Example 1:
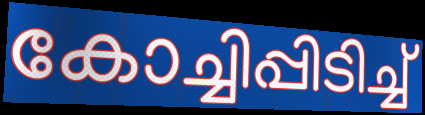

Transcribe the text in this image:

കോച്ചിപ്പിടിച്ച്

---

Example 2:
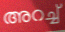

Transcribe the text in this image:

അറച്ച്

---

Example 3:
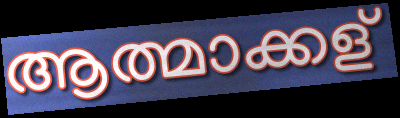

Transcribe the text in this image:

ആത്മാക്കള്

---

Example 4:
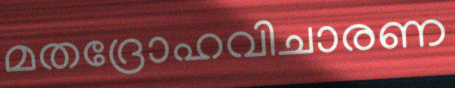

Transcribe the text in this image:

മതദ്രോഹവിചാരണ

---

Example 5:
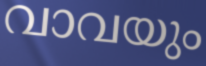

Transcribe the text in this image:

വാവയും